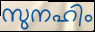
സുനഹിം